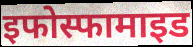
इफोस्फामाइड